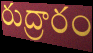
రుద్రారం